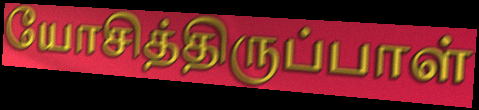
யோசித்திருப்பாள்